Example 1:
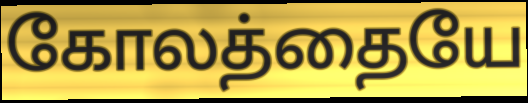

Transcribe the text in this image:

கோலத்தையே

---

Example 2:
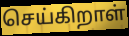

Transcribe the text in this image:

செய்கிறாள்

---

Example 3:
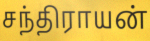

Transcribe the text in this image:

சந்திராயன்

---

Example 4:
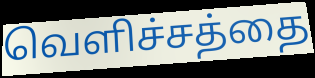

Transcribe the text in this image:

வெளிச்சத்தை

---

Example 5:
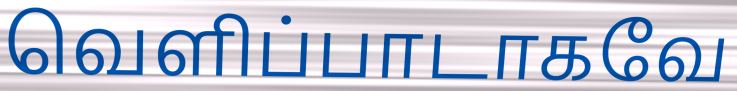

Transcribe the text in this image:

வெளிப்பாடாகவே